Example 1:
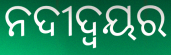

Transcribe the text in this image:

ନଦୀଦ୍ବୟର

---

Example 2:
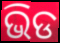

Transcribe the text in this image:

ଭିଡ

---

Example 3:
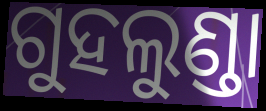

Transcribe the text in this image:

ଗୁହଲୁଣ୍ଡା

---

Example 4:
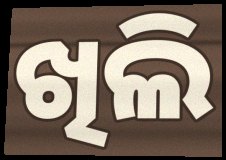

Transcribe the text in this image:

ଖିଲି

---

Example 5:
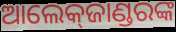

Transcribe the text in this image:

ଆଲେକ୍‌ଜାଣ୍ଡରଙ୍କ